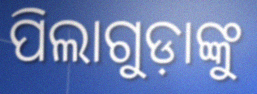
ପିଲାଗୁଡ଼ାଙ୍କୁ